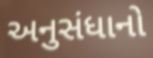
અનુસંધાનો